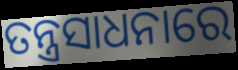
ତନ୍ତ୍ରସାଧନାରେ